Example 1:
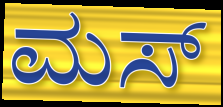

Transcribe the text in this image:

ಮಸ್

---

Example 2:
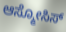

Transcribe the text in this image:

ಆಸ್ಮೋಸಿಸ್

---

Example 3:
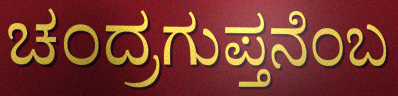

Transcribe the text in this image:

ಚಂದ್ರಗುಪ್ತನೆಂಬ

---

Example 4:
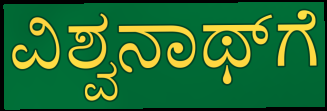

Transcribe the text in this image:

ವಿಶ್ವನಾಥ್‌ಗೆ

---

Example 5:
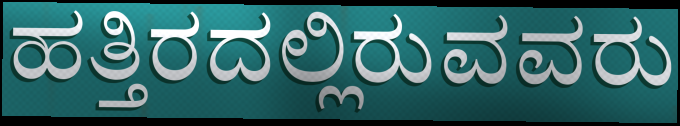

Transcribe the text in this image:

ಹತ್ತಿರದಲ್ಲಿರುವವರು